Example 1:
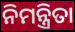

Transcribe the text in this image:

ନିମନ୍ତ୍ରିତା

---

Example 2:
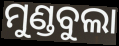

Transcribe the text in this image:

ମୁଣ୍ଡବୁଲା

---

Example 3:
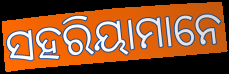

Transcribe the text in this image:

ସହରିୟାମାନେ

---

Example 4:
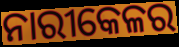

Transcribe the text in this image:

ନାରୀକେଳର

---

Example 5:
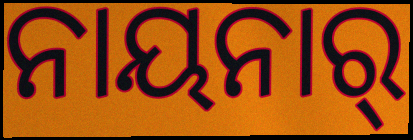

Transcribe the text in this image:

ନାୟନାର୍